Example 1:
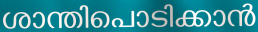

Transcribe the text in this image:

ശാന്തിപൊടിക്കാൻ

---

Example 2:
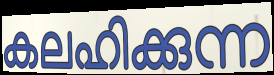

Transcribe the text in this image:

കലഹിക്കുന്ന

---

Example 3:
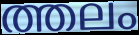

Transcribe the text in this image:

ത്തലം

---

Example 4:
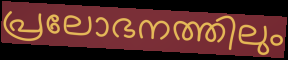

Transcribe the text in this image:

പ്രലോഭനത്തിലും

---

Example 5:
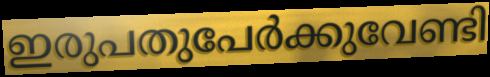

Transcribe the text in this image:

ഇരുപതുപേർക്കുവേണ്ടി